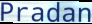
Pradan